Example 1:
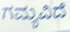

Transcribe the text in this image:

ಗಮ್ಯವಿದೆ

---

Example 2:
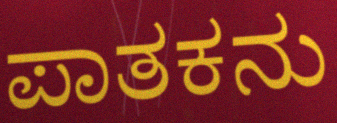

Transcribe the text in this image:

ಪಾತಕನು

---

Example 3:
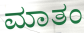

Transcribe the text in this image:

ಮಾತಂ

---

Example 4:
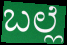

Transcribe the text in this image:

ಬಲ್ಲೆ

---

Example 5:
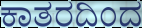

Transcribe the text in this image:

ಕಾತರದಿಂದ